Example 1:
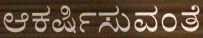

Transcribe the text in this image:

ಆಕರ್ಷಿಸುವಂತೆ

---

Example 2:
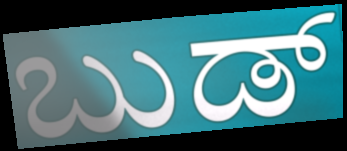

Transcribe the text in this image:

ಬುಡ್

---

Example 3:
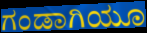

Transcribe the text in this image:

ಗಂಡಾಗಿಯೂ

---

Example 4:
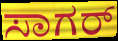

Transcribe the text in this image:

ಸಾಗರ್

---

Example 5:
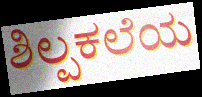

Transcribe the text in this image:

ಶಿಲ್ಪಕಲೆಯ